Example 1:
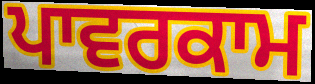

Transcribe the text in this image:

ਪਾਵਰਕਾਮ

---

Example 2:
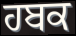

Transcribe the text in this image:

ਹਬਕ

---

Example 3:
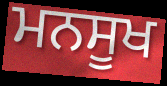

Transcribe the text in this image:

ਮਨਸੂਖ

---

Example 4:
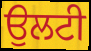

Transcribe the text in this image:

ਉਲਟੀ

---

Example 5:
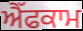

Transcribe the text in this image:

ਐੱਫਕਾਮ